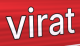
virat